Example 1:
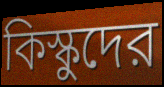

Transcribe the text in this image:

কিস্কুদের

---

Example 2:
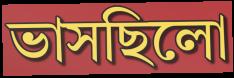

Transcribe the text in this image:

ভাসছিলো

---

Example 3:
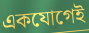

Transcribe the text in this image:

একযোগেই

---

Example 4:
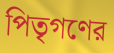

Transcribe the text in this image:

পিতৃগণের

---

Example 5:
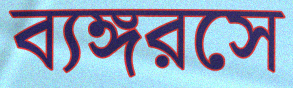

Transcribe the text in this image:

ব্যঙ্গরসে